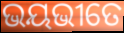
ଭୟଭୀତେ